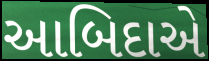
આબિદાએ